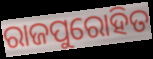
ରାଜପୁରୋହିତ